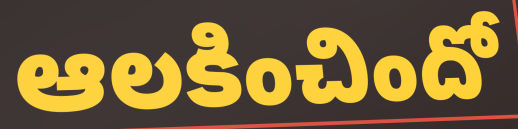
ఆలకించిందో